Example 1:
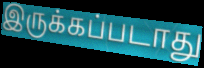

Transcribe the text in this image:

இருக்கப்படாது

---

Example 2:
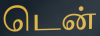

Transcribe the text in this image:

டென்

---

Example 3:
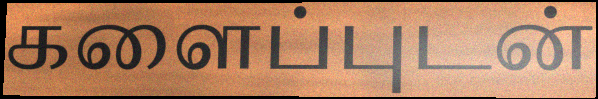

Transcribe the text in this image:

களைப்புடன்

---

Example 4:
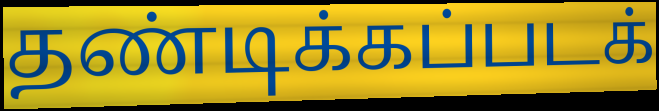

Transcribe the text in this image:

தண்டிக்கப்படக்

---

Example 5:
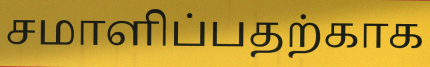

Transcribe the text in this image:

சமாளிப்பதற்காக